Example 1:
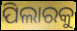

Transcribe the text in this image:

ପିଲାରକୁ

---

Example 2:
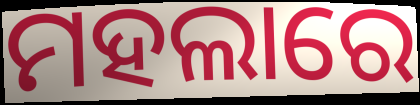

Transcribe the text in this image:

ମହଲାରେ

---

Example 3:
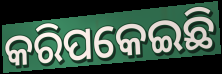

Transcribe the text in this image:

କରିପକେଇଛି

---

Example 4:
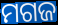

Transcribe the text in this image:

ମଗଜ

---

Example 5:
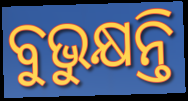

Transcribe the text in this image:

ବୁଭୁକ୍ଷନ୍ତି